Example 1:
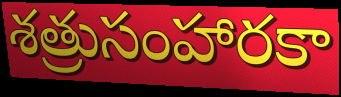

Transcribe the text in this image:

శత్రుసంహారకా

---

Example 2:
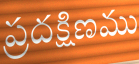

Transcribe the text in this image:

ప్రదక్షిణము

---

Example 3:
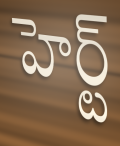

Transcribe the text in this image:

హెర్ట్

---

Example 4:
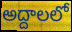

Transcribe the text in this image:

అద్దాలలో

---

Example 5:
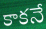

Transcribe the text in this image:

కాకనే